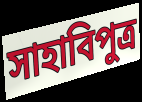
সাহাবিপুত্র